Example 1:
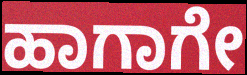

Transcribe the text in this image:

ಹಾಗಾಗೇ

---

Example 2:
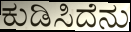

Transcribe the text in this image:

ಕುಡಿಸಿದೆನು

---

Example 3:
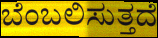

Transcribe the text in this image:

ಬೆಂಬಲಿಸುತ್ತದೆ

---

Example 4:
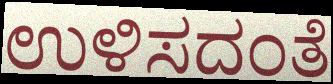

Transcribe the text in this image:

ಉಳಿಸದಂತೆ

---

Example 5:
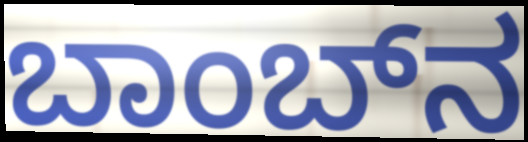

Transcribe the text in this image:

ಬಾಂಬ್‍ನ